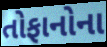
તોફાનોના